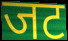
जट